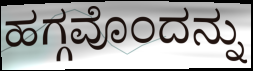
ಹಗ್ಗವೊಂದನ್ನು